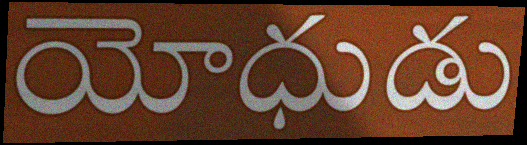
యోధుడు